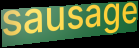
sausage